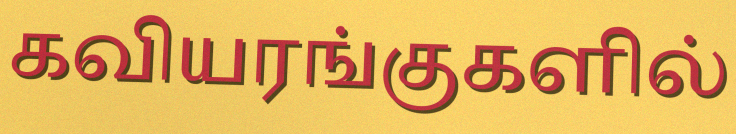
கவியரங்குகளில்